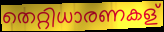
തെറ്റിധാരണകള്